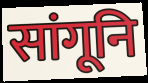
सांगूनि